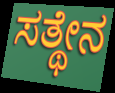
ಸತ್ಥೇನ